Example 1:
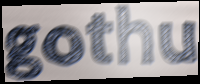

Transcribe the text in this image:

gothu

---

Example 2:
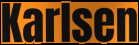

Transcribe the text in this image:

Karlsen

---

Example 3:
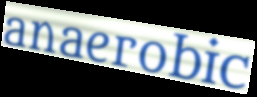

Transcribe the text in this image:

anaerobic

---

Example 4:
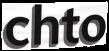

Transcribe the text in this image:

chto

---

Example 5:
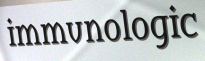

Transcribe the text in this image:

immunologic